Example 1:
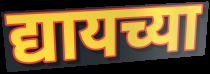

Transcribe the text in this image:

द्यायच्या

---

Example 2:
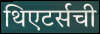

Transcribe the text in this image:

थिएटर्सची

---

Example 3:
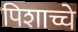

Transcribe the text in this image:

पिशाच्चे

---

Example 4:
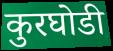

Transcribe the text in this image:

कुरघोडी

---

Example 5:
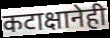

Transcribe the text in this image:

कटाक्षानेही